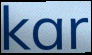
kar